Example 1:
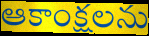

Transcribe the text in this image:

ఆకాంక్షలను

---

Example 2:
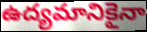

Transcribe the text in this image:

ఉద్యమానికైనా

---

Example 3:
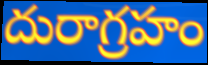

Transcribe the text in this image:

దురాగ్రహం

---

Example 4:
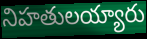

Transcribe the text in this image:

నిహతులయ్యారు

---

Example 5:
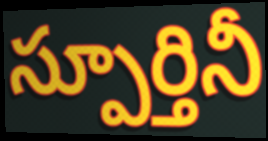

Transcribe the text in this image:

స్పూర్తినీ